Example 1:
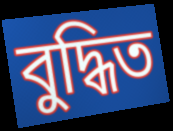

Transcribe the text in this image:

বুদ্ধিত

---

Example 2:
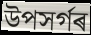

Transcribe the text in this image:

উপসৰ্গৰ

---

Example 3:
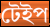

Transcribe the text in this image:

টেইপ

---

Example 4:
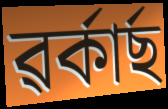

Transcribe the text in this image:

ৱৰ্কাৰ্ছ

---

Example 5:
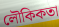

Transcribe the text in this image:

লৌকিকতা